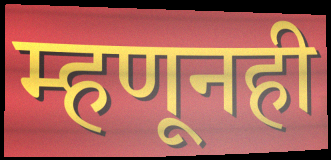
म्‍हणूनही